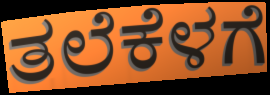
ತಲೆಕೆಳಗೆ